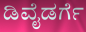
ಡಿವೈಡರ್ಗೆ